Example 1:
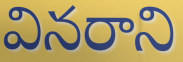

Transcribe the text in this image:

వినరాని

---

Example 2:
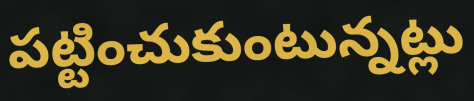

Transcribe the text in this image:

పట్టించుకుంటున్నట్లు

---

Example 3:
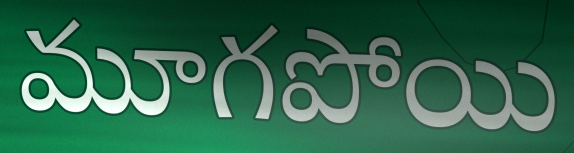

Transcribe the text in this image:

మూగపోయి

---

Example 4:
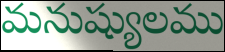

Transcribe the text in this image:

మనుష్యులము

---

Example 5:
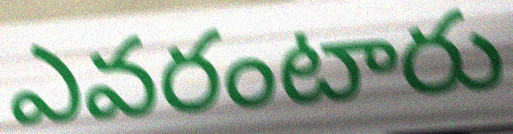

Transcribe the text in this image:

ఎవరంటారు